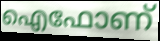
ഐഫോണ്